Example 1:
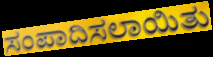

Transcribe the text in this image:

ಸಂಪಾದಿಸಲಾಯಿತು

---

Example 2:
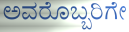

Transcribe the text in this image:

ಅವರೊಬ್ಬರಿಗೇ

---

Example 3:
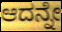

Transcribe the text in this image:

ಆದನ್ನೇ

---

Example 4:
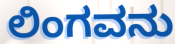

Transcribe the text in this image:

ಲಿಂಗವನು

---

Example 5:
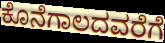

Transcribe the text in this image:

ಕೊನೆಗಾಲದವರೆಗೆ